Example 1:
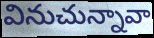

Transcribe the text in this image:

వినుచున్నావా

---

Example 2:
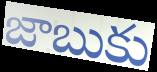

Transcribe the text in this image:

జాబుకు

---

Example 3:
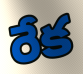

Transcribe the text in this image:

రేక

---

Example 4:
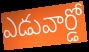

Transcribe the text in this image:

ఎడువార్డో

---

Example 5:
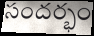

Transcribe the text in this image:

సందర్భం